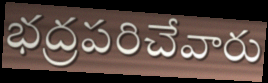
భద్రపరిచేవారు